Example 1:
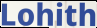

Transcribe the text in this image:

Lohith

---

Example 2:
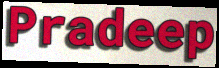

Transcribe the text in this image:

Pradeep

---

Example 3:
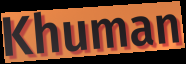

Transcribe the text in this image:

Khuman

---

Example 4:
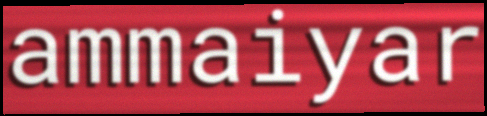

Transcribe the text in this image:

ammaiyar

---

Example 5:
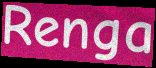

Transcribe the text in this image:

Renga